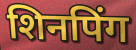
शिनपिंग